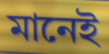
মানেই